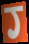
ग्‍